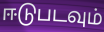
ஈடுபடவும்